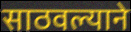
साठवल्याने